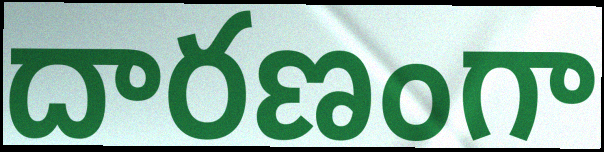
దారణంగా